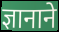
ज्ञानाने